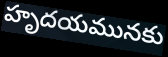
హృదయమునకు